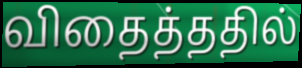
விதைத்ததில்